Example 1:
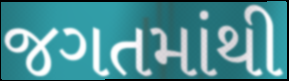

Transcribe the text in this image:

જગતમાંથી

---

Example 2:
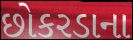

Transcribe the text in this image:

છોકરડાના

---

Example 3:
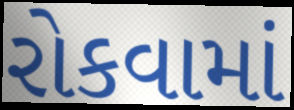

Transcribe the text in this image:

રોકવામાં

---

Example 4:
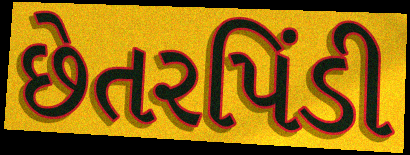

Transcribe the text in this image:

છેતરપિંડી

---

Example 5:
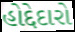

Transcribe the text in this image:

હોદ્દેદારો